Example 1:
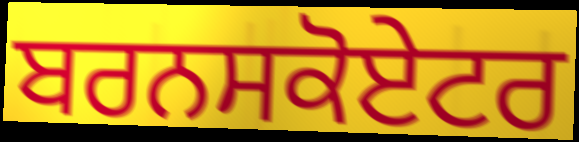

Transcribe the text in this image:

ਬਰਨਸਕੋਏਟਰ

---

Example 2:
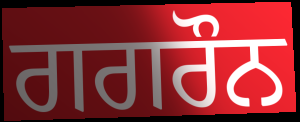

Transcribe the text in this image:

ਗਗਰੌਨ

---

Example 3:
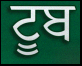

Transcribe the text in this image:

ਟੂਬ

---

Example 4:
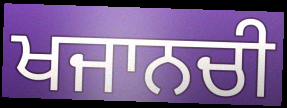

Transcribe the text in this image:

ਖਜਾਨਚੀ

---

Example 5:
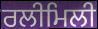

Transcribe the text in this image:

ਰਲੀਮਿਲੀ